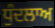
ਧੁੰਦਲਾਅ